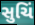
સુચિં